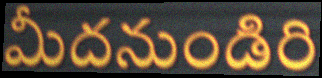
మీదనుండిరి